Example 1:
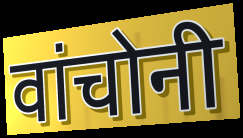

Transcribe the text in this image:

वांचोनी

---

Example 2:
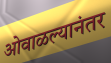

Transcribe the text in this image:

ओवाळल्यानंतर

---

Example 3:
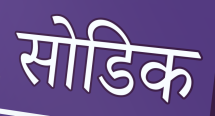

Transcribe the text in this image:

सोडिक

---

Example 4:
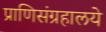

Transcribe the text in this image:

प्राणिसंग्रहालये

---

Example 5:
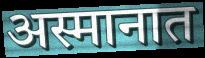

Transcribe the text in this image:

अस्मानात